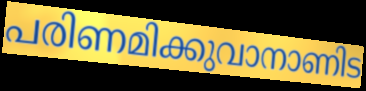
പരിണമിക്കുവാനാണിട